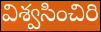
విశ్వసించిరి